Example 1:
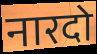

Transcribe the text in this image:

नारदो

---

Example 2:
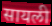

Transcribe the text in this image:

सायली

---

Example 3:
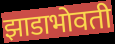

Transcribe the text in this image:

झाडाभोवती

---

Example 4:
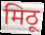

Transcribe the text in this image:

मिठू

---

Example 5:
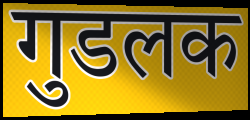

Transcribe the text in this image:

गुडलक